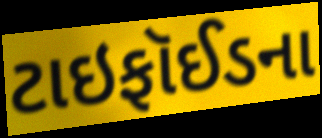
ટાઇફૉઈડના